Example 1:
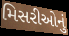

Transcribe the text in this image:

મિસરીઓનું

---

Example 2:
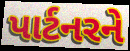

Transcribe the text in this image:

પાર્ટનરને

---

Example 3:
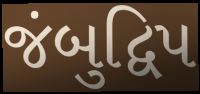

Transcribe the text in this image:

જંબુદ્વિપ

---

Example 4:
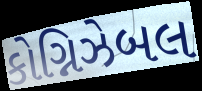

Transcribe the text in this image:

કોગ્નિઝેબલ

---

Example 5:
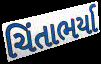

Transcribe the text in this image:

ચિંતાભર્યા